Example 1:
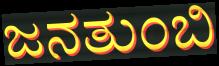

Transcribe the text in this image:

ಜನತುಂಬಿ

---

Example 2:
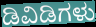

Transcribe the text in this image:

ಡಿವಿಡಿಗಳು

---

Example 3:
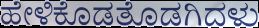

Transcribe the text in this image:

ಹೇಳಿಕೊಡತೊಡಗಿದಳು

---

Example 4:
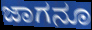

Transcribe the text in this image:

ಜಾಗನೂ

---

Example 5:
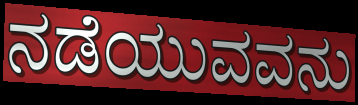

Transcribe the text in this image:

ನಡೆಯುವವನು